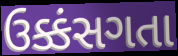
ઉક્કંસગતા